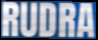
RUDRA